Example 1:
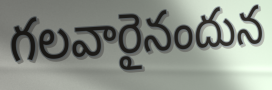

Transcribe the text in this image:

గలవారైనందున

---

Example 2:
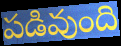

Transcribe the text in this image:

పడివుంది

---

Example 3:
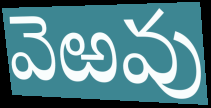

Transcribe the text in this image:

వెఱవు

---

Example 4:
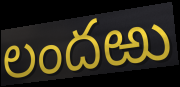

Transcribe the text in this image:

లందఱు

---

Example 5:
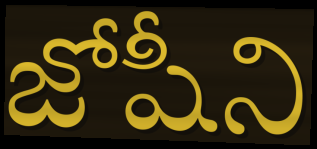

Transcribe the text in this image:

జోషీని